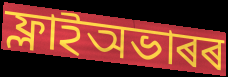
ফ্লাইঅভাৰৰ